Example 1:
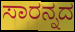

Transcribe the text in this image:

ಸಾರನ್ನದ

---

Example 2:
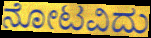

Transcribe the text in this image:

ನೋಟವಿದು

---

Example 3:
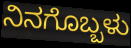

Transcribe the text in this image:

ನಿನಗೊಬ್ಬಳು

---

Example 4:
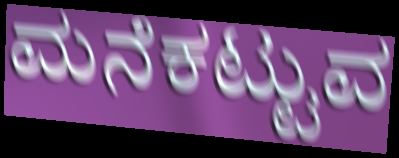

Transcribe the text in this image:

ಮನೆಕಟ್ಟುವ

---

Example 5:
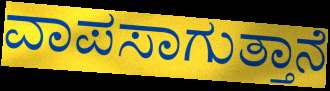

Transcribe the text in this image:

ವಾಪಸಾಗುತ್ತಾನೆ